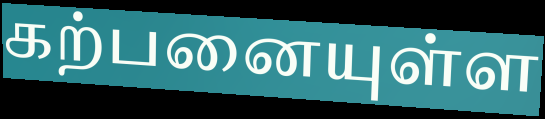
கற்பனையுள்ள